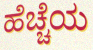
ಹೆಚ್ಚೆಯ